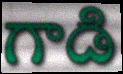
గాడి